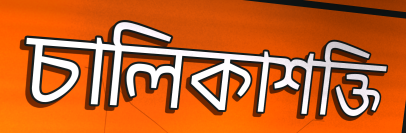
চালিকাশক্তি